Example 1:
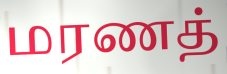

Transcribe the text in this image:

மரணத்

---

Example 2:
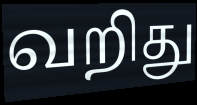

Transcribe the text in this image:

வறிது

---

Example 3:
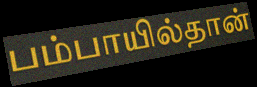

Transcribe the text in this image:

பம்பாயில்தான்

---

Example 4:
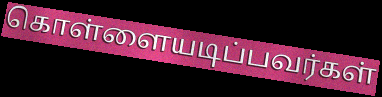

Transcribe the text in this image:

கொள்ளையடிப்பவர்கள்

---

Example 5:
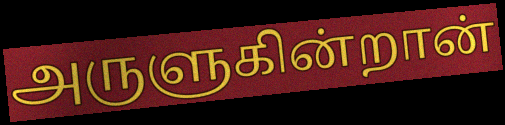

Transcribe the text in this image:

அருளுகின்றான்